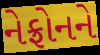
નેફ્રોનને